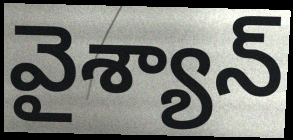
వైశ్యాన్